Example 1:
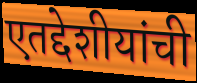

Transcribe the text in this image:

एतद्देशीयांची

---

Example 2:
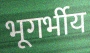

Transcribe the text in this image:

भूगर्भीय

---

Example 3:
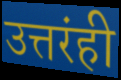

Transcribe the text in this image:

उत्तरंही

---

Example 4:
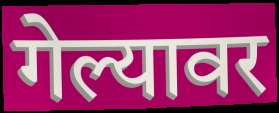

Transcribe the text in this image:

गेल्यावर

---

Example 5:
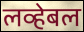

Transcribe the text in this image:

लव्हेबल